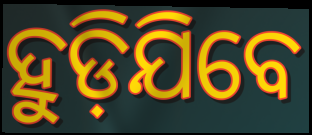
ହୁଡ଼ିଯିବେ